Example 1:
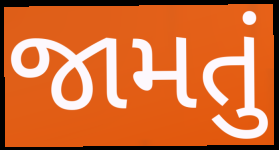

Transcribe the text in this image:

જામતું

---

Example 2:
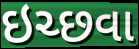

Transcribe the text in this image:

ઇચ્છવા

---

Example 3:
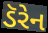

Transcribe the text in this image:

ડૅરેન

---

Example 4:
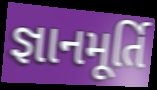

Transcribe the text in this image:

જ્ઞાનમૂર્તિ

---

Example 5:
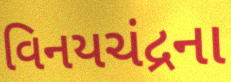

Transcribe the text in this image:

વિનયચંદ્રના